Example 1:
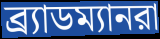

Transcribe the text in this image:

ব্র্যাডম্যানরা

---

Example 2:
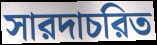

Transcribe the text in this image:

সারদাচরিত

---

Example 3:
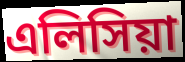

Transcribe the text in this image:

এলিসিয়া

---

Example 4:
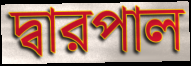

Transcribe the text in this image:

দ্বারপাল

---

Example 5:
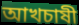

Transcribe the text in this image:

আখচাষী